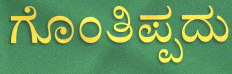
ಗೊಂತಿಪ್ಪದು